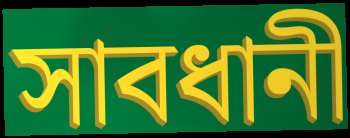
সাবধানী